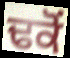
ਢਕੋਂ